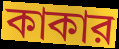
কাকার